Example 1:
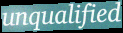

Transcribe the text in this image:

unqualified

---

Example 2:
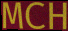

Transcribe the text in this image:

MCH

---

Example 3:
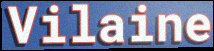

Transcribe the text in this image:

Vilaine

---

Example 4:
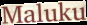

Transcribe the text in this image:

Maluku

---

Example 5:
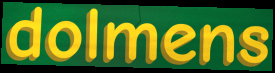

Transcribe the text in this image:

dolmens